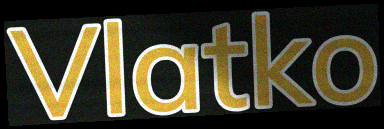
Vlatko